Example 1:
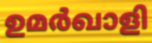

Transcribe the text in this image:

ഉമർഖാളി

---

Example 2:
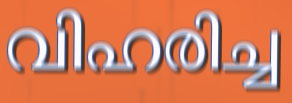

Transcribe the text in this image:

വിഹരിച്ച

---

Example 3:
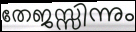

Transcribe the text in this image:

തേജസ്സിന്നും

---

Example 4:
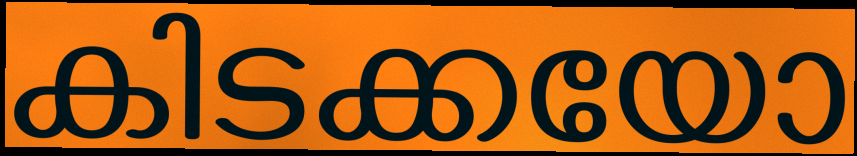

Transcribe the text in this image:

കിടക്കയോ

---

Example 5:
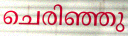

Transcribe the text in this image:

ചെരിഞ്ഞു